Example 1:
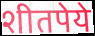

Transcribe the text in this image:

शीतपेये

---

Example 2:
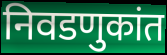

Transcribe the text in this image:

निवडणुकांत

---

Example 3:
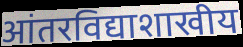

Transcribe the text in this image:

आंतरविद्याशाखीय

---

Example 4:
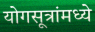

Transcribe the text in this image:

योगसूत्रांमध्ये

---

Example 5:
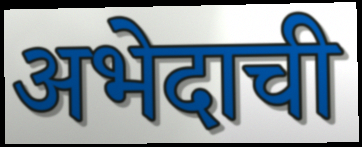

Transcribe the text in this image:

अभेदाची